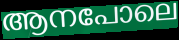
ആനപോലെ